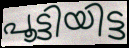
പൂട്ടിയിട്ട